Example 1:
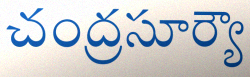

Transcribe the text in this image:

చంద్రసూర్యౌ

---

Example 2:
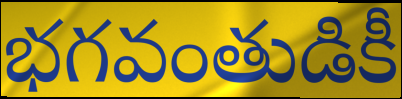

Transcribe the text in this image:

భగవంతుడికీ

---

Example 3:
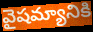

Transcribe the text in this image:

వైషమ్యానికి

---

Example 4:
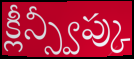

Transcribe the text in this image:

క్లీన్స్వీప్కు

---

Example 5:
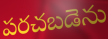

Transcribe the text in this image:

పరచబడెను